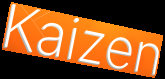
Kaizen